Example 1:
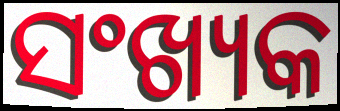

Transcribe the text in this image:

ସଂଖ୍ୟକ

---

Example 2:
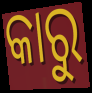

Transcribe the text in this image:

କାରୁ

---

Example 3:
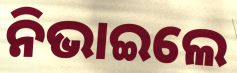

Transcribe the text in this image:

ନିଭାଇଲେ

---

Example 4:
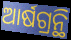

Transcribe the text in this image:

ଆର୍ଷଗ୍ରନ୍ଥି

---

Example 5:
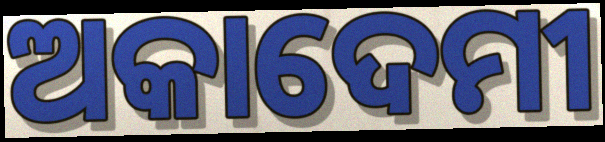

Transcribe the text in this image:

ଅକାଦେମୀ